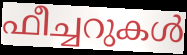
ഫീച്ചറുകൾ